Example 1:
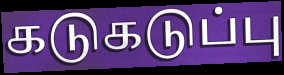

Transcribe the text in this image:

கடுகடுப்பு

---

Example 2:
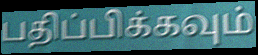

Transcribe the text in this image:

பதிப்பிக்கவும்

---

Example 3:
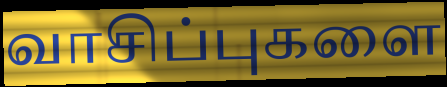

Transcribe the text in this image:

வாசிப்புகளை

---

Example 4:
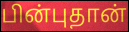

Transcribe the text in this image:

பின்புதான்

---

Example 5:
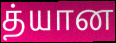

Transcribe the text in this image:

த்யான